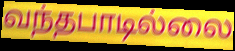
வந்தபாடில்லை